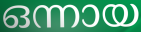
ഒന്നായ